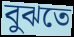
বুঝতে